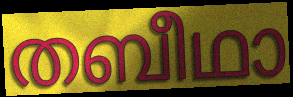
തബീഥാ